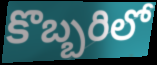
కొబ్బరిలో